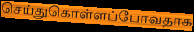
செய்துகொள்ளப்போவதாக